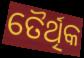
ତୈର୍ଥିକ